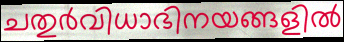
ചതുർവിധാഭിനയങ്ങളിൽ